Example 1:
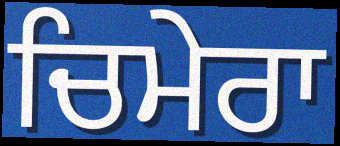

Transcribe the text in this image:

ਚਿਮੇਰਾ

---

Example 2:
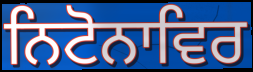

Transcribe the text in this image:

ਨਿਟੋਨਾਵਿਰ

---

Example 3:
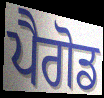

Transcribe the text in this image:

ਪੈਗੋਡ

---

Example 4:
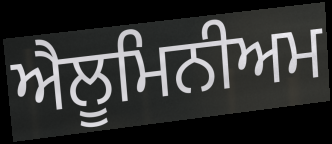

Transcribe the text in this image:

ਐਲੂਮਿਨੀਅਮ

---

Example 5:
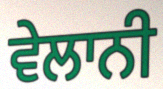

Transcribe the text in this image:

ਵੇਲਾਨੀ